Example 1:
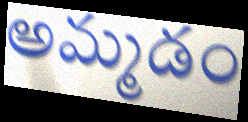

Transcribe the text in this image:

అమ్మడం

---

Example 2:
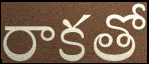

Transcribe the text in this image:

రాకతో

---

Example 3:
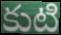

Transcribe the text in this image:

కుటి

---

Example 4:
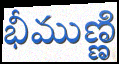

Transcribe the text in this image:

భీముణ్ణి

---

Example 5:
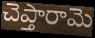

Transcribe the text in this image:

చెప్తారామె